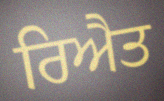
ਰਿਐਤ